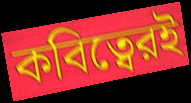
কবিত্বেরই